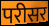
परीसर